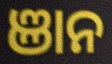
ଞାନ